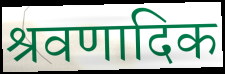
श्रवणादिक